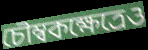
চৌম্বকক্ষেত্রেও